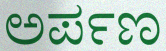
ಅರ್ಪಣ